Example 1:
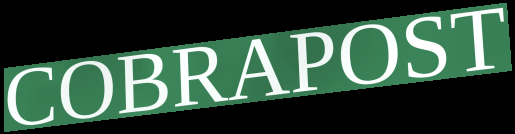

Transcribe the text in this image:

COBRAPOST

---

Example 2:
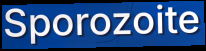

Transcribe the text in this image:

Sporozoite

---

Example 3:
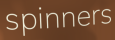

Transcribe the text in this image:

spinners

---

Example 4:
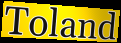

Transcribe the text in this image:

Toland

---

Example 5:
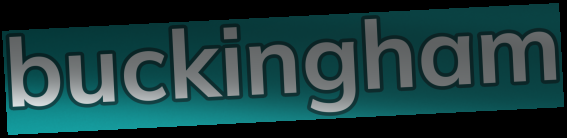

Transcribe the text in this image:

buckingham